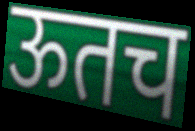
ऊतच